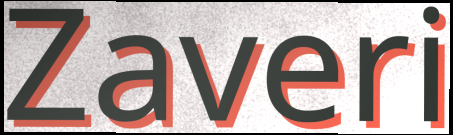
Zaveri